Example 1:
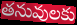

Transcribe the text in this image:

తనువులకు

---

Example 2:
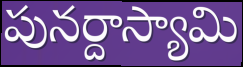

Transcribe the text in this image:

పునర్దాస్యామి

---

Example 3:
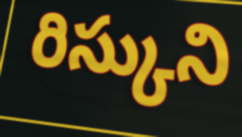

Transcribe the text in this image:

రిస్కుని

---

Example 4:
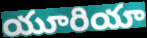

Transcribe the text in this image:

యూరియా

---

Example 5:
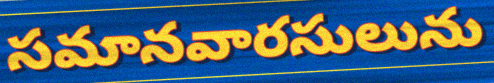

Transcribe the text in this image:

సమానవారసులును